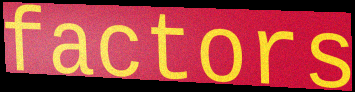
factors